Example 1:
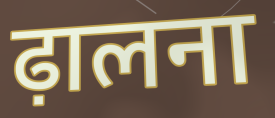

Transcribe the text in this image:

ढ़ालना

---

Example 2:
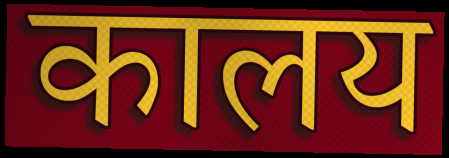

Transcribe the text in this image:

कालय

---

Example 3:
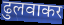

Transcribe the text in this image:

ढुलवाकर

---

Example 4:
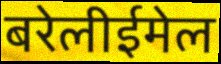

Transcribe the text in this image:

बरेलीईमेल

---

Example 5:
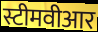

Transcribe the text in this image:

स्टीमवीआर